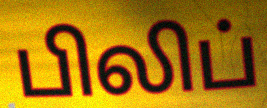
பிலிப்